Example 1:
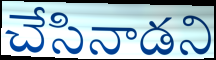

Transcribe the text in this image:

చేసినాడని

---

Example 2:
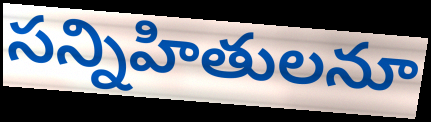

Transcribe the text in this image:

సన్నిహితులనూ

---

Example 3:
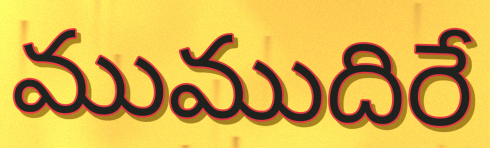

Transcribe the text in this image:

ముముదిరే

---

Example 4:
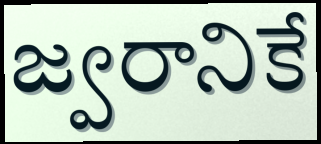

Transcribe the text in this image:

జ్వరానికే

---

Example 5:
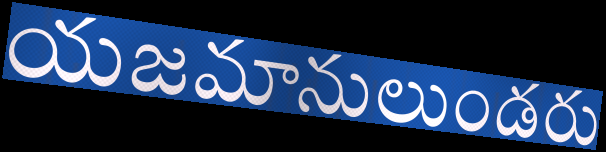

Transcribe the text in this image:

యజమానులుండరు